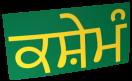
ਕਸ਼ੇਮੰ